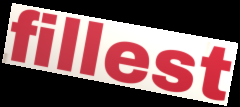
fillest